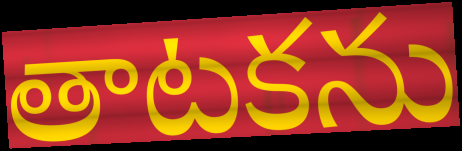
తాటకను